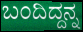
ಬಂದಿದ್ದನ್ನ